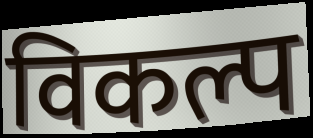
विकल्‍प